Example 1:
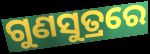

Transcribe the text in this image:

ଗୁଣସୁତ୍ରରେ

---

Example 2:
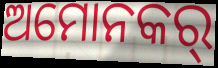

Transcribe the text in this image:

ଅମୋନକର୍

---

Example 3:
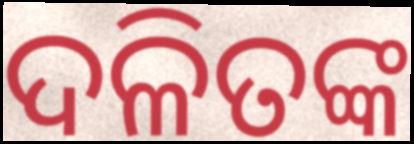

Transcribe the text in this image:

ଦଳିତଙ୍କ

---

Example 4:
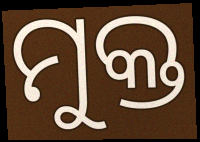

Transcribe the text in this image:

ମୁକ୍ତ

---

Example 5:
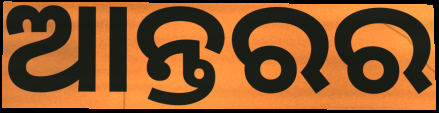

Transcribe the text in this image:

ଆନ୍ତରର